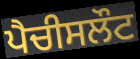
ਪੈਚੀਸਲੌਟ